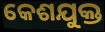
କେଶଯୁକ୍ତ